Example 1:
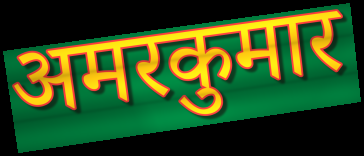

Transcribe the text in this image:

अमरकुमार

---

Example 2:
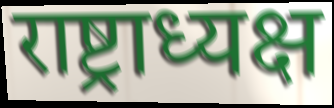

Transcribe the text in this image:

राष्ट्राध्यक्ष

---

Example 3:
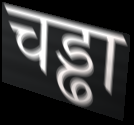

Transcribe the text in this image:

चड्ढा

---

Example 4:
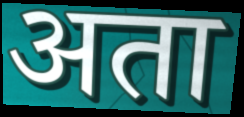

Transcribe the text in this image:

अता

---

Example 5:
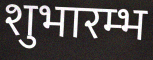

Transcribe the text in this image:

शुभारम्‍भ